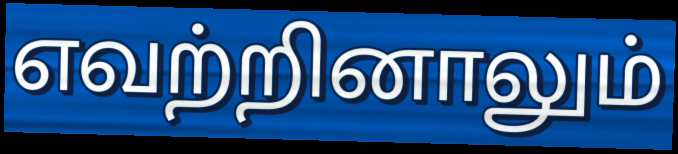
எவற்றினாலும்